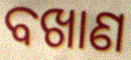
ବଖାଣ